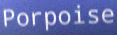
Porpoise